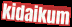
kidaikum